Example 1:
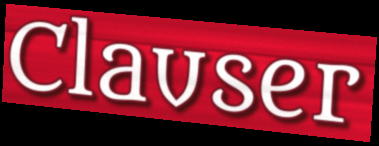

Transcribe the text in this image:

Clauser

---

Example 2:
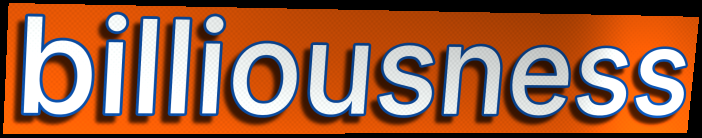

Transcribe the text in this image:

billiousness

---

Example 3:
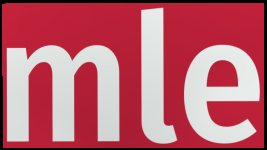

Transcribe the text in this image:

mle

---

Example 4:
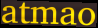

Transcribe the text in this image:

atmao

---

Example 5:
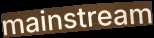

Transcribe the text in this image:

mainstream